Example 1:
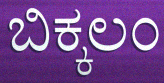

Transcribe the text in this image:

ಬಿಕ್ಕಲಂ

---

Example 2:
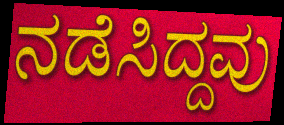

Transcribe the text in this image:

ನಡೆಸಿದ್ದವು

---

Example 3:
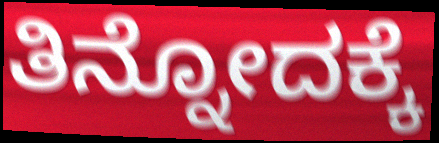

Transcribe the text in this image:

ತಿನ್ನೋದಕ್ಕೆ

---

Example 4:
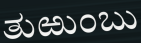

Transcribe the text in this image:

ತುಱುಂಬು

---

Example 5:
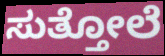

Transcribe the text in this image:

ಸುತ್ತೋಲೆ